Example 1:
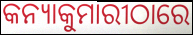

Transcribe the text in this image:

କନ୍ୟାକୁମାରୀଠାରେ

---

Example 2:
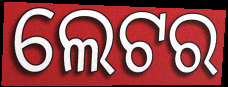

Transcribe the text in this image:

ଲେଟର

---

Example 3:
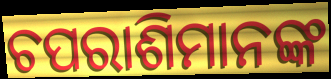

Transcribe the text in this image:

ଚପରାଶିମାନଙ୍କ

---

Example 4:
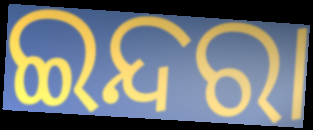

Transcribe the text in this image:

ଇନ୍ଦରା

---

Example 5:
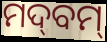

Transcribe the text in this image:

ମଦ୍‌ବମ୍